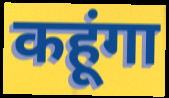
कहूंगा